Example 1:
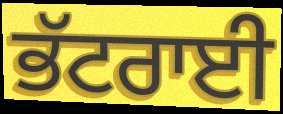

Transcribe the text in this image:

ਭੱਟਰਾਈ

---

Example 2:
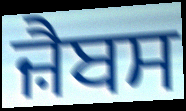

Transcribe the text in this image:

ਜ਼ੈਬਸ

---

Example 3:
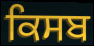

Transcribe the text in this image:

ਕਿਸਬ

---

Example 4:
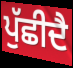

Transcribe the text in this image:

ਪੁੱਛੀਦੈ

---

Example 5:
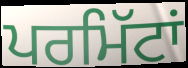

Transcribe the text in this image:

ਪਰਮਿੱਟਾਂ